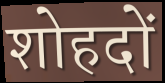
शोहदों